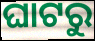
ଘାଟରୁ